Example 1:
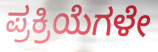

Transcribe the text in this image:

ಪ್ರಕ್ರಿಯೆಗಳೇ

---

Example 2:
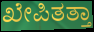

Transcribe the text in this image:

ಖೇಪಿತತ್ತಾ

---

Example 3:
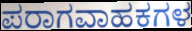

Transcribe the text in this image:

ಪರಾಗವಾಹಕಗಳ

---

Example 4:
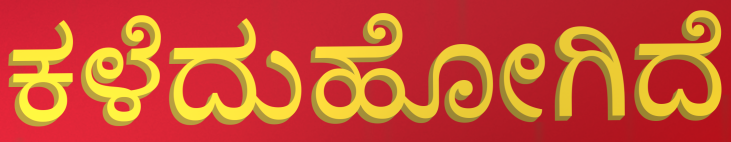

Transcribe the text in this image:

ಕಳೆದುಹೋಗಿದೆ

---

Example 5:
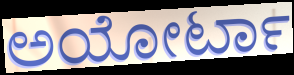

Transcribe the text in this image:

ಅಯೋರ್ಟಾ